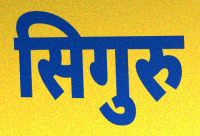
सिगुरु